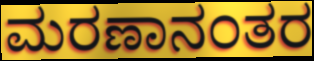
ಮರಣಾನಂತರ